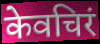
केवचिरं